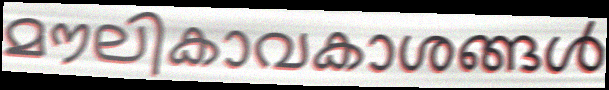
മൗലികാവകാശങ്ങൾ